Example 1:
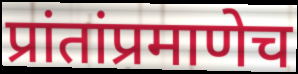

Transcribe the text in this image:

प्रांतांप्रमाणेच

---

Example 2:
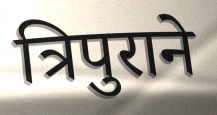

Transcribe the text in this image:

त्रिपुराने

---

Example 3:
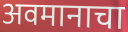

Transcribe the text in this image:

अवमानाचा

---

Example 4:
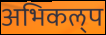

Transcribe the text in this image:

अभिकल्प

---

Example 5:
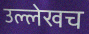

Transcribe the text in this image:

उल्लेखच